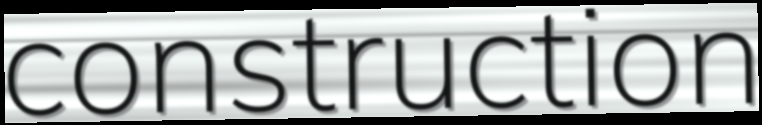
construction